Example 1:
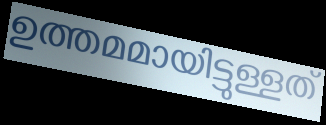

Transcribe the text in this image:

ഉത്തമമായിട്ടുള്ളത്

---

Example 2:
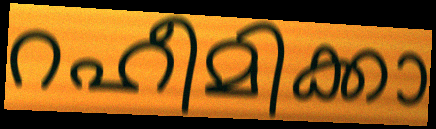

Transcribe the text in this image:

റഹീമിക്കാ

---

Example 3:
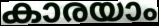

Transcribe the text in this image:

കാരയാം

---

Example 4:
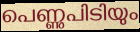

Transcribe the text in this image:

പെണ്ണുപിടിയും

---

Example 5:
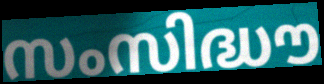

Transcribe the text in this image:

സംസിദ്ധൗ